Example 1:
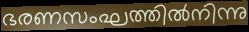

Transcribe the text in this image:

ഭരണസംഘത്തിൽനിന്നു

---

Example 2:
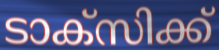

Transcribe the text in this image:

ടാക്സിക്ക്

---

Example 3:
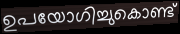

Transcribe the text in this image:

ഉപയോഗിച്ചുകൊണ്ട്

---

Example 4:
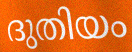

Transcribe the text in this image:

ദുതിയം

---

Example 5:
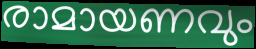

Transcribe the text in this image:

രാമായണവും